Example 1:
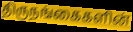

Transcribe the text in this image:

திருநங்கைகளின்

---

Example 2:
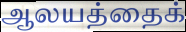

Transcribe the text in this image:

ஆலயத்தைக்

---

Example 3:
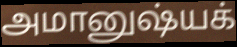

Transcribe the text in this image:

அமானுஷ்யக்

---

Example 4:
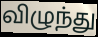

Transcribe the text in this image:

விழுந்து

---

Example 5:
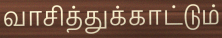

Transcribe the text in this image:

வாசித்துக்காட்டும்